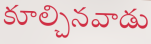
కూల్చినవాడు